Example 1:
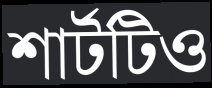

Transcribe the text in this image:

শার্টটিও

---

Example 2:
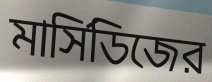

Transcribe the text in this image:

মার্সিডিজের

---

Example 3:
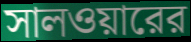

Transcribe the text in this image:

সালওয়ারের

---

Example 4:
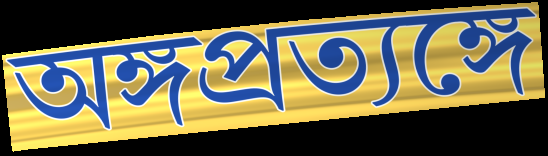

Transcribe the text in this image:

অঙ্গপ্রত্যঙ্গে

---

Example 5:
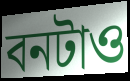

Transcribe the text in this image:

বনটাও